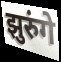
झुरुंगे